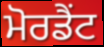
ਮੋਰਡੈਂਟ